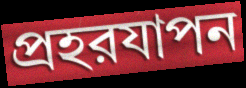
প্রহরযাপন